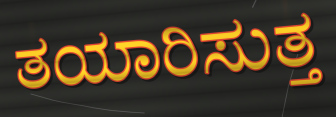
ತಯಾರಿಸುತ್ತ